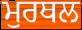
ਮੁਰਥਲ